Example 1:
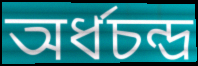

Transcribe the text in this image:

অৰ্ধচন্দ্ৰ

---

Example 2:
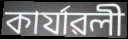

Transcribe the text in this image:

কাৰ্যাৱলী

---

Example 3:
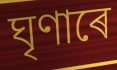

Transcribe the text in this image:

ঘৃণাৰে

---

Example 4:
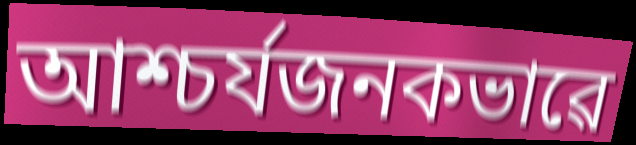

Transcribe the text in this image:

আশ্চৰ্যজনকভাৱে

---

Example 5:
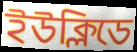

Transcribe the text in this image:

ইউক্লিডে